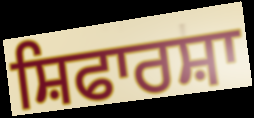
ਸ਼ਿਫਾਰਸ਼ਾ